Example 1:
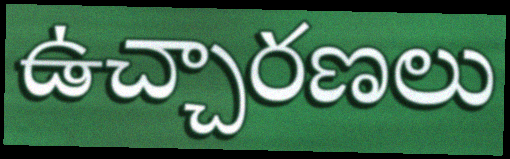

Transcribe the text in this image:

ఉచ్చారణలు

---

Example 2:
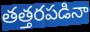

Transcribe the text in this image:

తత్తరపడినా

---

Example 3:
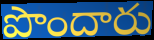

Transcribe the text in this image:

పొందారు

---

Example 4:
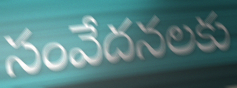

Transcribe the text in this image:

సంవేదనలకు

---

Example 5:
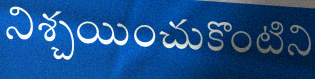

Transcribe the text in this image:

నిశ్చయించుకొంటిని